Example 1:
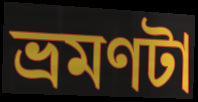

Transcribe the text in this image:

ভ্রমণটা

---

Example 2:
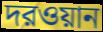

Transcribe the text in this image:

দরওয়ান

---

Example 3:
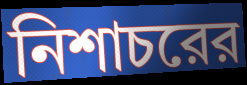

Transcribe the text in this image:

নিশাচরের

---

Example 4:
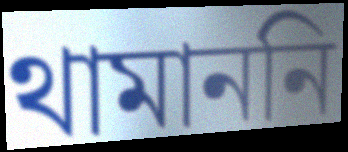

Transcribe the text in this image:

থামাননি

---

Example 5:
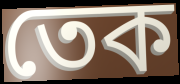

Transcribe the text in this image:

তেক